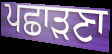
ਪਛਾੜਣਾ